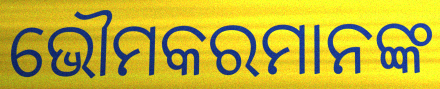
ଭୌମକରମାନଙ୍କ